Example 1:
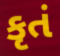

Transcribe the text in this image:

કૃતં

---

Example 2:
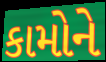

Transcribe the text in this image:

કામોને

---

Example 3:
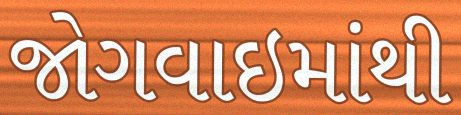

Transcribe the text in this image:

જોગવાઇમાંથી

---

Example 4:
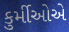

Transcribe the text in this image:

કુર્મીઓએ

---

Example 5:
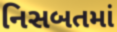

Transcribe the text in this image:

નિસબતમાં